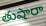
తుషారా